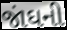
જાંઘની